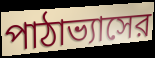
পাঠাভ্যাসের